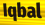
Iqbal